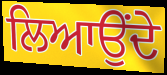
ਲਿਆਉਂਦੇ